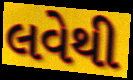
લવેથી